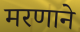
मरणाने